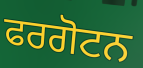
ਫਰਗੋਟਨ